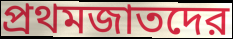
প্রথমজাতদের